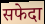
सफेदा